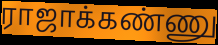
ராஜாக்கண்ணு